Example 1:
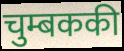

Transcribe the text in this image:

चुम्बककी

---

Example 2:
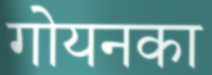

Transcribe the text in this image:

गोयनका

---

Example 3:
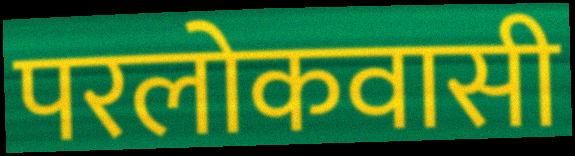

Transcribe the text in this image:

परलोकवासी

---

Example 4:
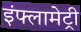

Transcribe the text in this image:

इंफ्लामेट्री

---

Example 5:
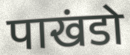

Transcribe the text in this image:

पाखंडो